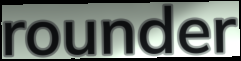
rounder